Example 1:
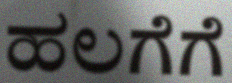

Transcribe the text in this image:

ಹಲಗೆಗೆ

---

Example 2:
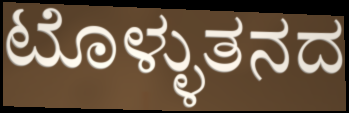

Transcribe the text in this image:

ಟೊಳ್ಳುತನದ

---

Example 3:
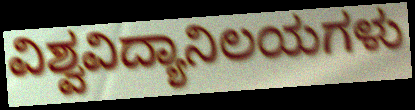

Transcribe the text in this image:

ವಿಶ್ವವಿದ್ಯಾನಿಲಯಗಳು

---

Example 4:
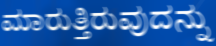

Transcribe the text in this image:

ಮಾರುತ್ತಿರುವುದನ್ನು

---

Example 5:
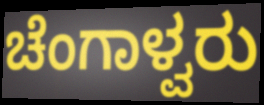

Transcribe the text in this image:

ಚೆಂಗಾಳ್ವರು